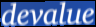
devalue